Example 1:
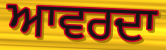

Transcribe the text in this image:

ਆਵਰਦਾ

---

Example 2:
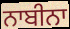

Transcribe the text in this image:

ਨਾਬੀਨਾ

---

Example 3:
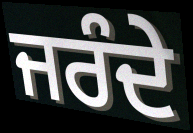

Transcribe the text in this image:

ਜਰੰਦੇ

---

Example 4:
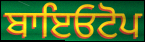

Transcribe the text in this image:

ਬਾਇਓਟੋਪ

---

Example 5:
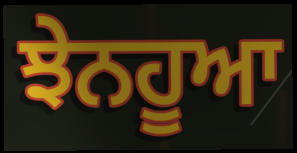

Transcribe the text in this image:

ਝੇਨਹੂਆ